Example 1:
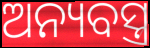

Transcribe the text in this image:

ଅନ୍ୟବସ୍ତ୍ର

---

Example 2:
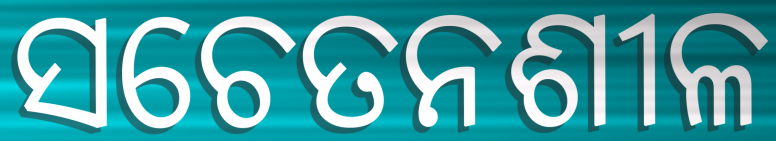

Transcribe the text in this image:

ସଚେତନଶୀଳ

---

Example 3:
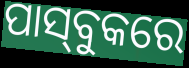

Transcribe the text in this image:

ପାସ୍‌ବୁକରେ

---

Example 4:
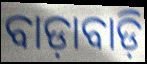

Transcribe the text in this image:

ବାଡ଼ାବାଡ଼ି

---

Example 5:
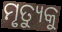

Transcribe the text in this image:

ମୃତ୍ୟୁକୁ